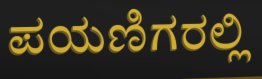
ಪಯಣಿಗರಲ್ಲಿ